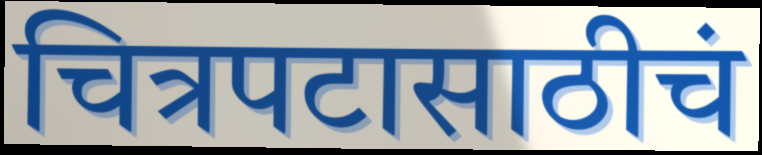
चित्रपटासाठीचं